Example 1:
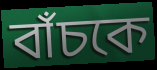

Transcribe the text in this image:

বাঁচকে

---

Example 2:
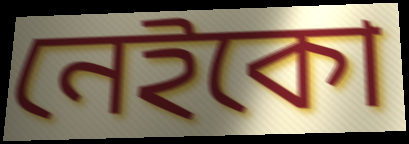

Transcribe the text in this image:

নেইকো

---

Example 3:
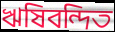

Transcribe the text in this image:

ঋষিবন্দিত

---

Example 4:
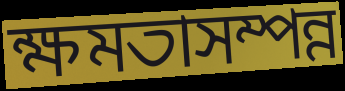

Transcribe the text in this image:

ক্ষমতাসম্পন্ন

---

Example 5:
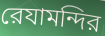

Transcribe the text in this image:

রেযামন্দির